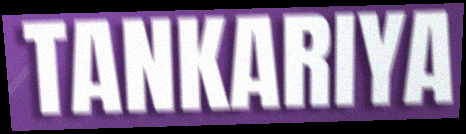
TANKARIYA